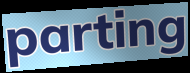
parting